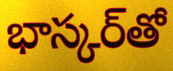
భాస్కర్‌తో